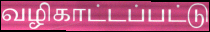
வழிகாட்டப்பட்டு